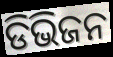
ଡିଭିଜନ